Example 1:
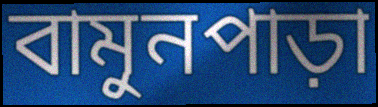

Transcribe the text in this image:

বামুনপাড়া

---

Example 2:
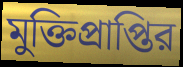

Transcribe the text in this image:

মুক্তিপ্রাপ্তির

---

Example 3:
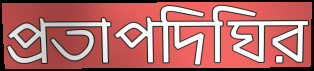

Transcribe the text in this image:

প্রতাপদিঘির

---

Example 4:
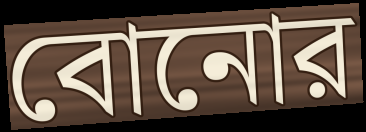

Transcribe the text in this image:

বোনোর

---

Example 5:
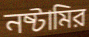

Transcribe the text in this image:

নষ্টামির